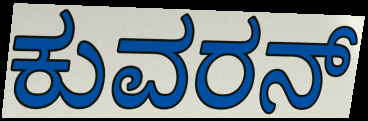
ಕುವರನ್